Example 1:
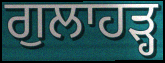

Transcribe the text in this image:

ਗੁਲਾਹੜ੍ਹ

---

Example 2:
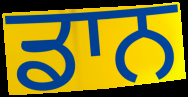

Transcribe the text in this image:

ਡਾਨ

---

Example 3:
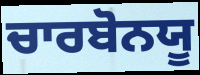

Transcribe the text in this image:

ਚਾਰਬੋਨਯੂ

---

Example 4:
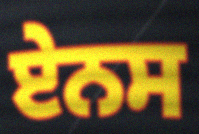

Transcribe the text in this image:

ਏਨਸ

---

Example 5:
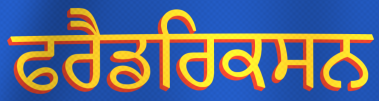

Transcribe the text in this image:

ਫਰੈਡਰਿਕਸਨ